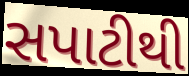
સપાટીથી